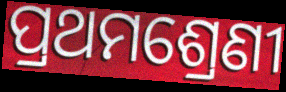
ପ୍ରଥମଶ୍ରେଣୀ